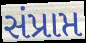
સંપ્રાપ્ત